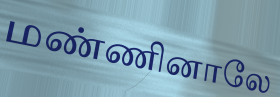
மண்ணினாலே